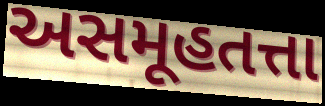
અસમૂહતત્તા